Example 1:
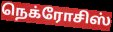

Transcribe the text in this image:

நெக்ரோசிஸ்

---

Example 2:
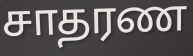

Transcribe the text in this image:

சாதரண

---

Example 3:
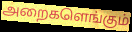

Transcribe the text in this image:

அறைகளெங்கும்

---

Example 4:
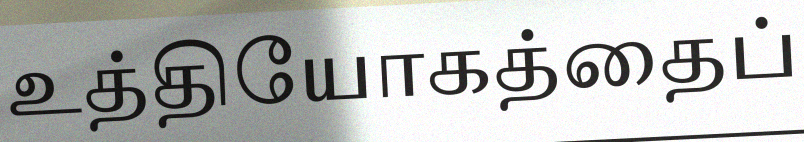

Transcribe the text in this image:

உத்தியோகத்தைப்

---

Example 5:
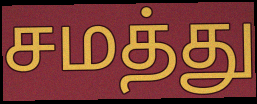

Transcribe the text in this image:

சமத்து